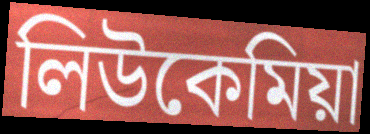
লিউকেমিয়া